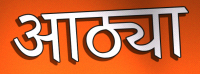
आठ्या